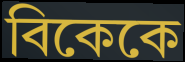
বিকেকে